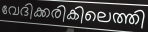
വേദിക്കരികിലെത്തി